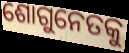
ଶୋଗୁନେତକୁ